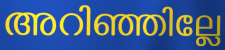
അറിഞ്ഞില്ലേ